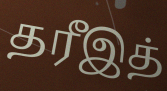
தரீஇத்